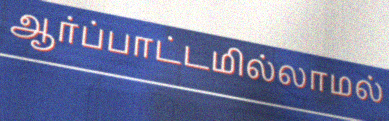
ஆர்ப்பாட்டமில்லாமல்